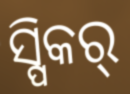
ସ୍ପିକର୍